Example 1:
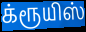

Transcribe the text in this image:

க்ரூயிஸ்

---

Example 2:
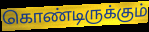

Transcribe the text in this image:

கொண்டிருக்கும்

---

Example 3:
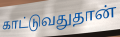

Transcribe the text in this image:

காட்டுவதுதான்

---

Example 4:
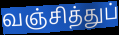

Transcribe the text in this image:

வஞ்சித்துப்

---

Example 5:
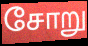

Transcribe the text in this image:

சோறு